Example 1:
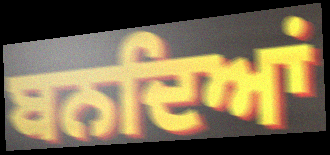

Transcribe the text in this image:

ਬਨਦਿਆਂ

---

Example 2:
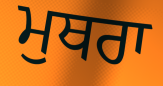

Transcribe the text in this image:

ਮੁਥਰਾ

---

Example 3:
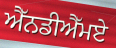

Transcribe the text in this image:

ਐੱਨਡੀਐੱਮਏ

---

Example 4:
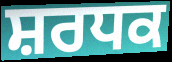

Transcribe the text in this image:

ਸ਼ਰਧਕ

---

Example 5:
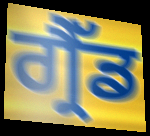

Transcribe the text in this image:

ਗ੍ਰੈੱਡ